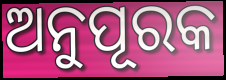
ଅନୁପୂରକ